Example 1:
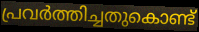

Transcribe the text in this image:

പ്രവർത്തിച്ചതുകൊണ്ട്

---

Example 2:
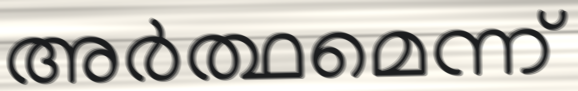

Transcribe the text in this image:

അർത്ഥമെന്ന്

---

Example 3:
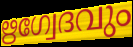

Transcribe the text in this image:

ഋഗ്വേദവും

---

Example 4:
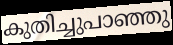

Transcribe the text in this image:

കുതിച്ചുപാഞ്ഞു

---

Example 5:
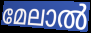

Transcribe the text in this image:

മേലാൽ